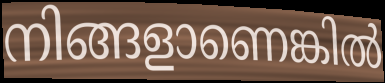
നിങ്ങളാണെങ്കിൽ